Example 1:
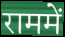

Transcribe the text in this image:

राममें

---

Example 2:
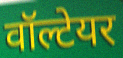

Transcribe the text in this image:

वॉल्टेयर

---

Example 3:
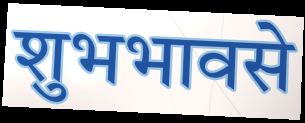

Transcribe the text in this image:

शुभभावसे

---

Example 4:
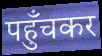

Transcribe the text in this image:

पहुँचकर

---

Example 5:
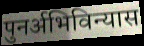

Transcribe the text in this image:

पुनर्अभिविन्यास